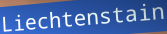
Liechtenstain